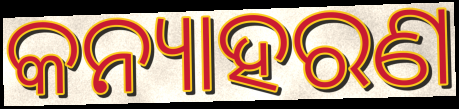
କନ୍ୟାହରଣ